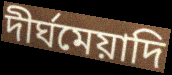
দীর্ঘমেয়াদি